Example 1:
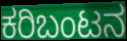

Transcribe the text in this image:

ಕರಿಬಂಟನ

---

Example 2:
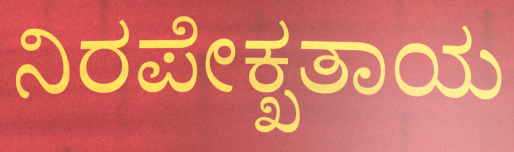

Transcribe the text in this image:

ನಿರಪೇಕ್ಖತಾಯ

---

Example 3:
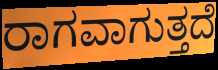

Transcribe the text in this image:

ರಾಗವಾಗುತ್ತದೆ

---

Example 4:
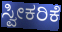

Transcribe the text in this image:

ಸ್ವೀಕರಿಕೆ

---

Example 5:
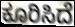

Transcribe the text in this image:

ಕೂರಿಸಿದೆ